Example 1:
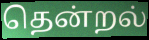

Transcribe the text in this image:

தென்றல்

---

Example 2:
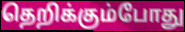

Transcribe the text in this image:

தெறிக்கும்போது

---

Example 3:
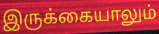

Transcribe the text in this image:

இருக்கையாலும்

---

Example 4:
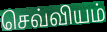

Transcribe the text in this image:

செவ்வியம்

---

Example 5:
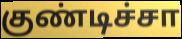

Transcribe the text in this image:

குண்டிச்சா